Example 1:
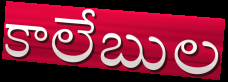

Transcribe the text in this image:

కాలేబుల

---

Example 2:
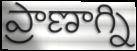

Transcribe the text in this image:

ప్రాణాగ్ని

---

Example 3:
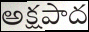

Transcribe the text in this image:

అక్షపాద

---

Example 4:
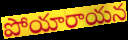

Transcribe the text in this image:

పోయారాయన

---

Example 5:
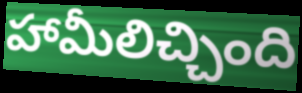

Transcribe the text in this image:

హామీలిచ్చింది